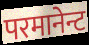
परमानेन्ट